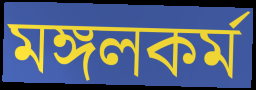
মঙ্গলকর্ম